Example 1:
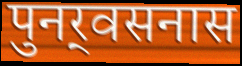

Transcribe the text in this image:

पुनर्वसनास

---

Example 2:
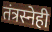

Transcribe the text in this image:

तंत्रस्नेही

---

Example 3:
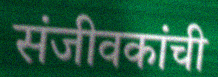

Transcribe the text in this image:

संजीवकांची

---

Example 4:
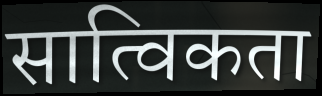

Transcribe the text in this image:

सात्विकता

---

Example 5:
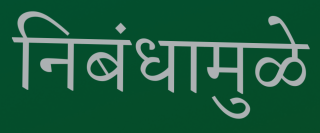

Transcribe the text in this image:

निबंधामुळे